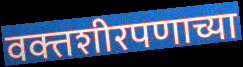
वक्तशीरपणाच्या